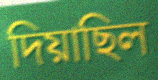
দিয়াছিল